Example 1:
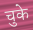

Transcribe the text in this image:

चुके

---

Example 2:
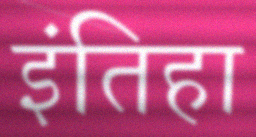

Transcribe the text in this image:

इंतिहा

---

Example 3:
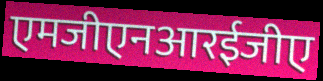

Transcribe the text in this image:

एमजीएनआरईजीए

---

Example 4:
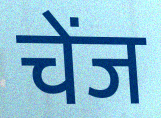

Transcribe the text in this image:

चेंज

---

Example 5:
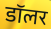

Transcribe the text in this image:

डॉलर